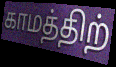
காமத்திற்